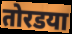
तोरडया